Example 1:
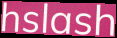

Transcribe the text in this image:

hslash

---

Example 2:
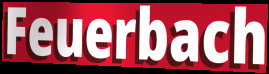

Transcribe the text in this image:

Feuerbach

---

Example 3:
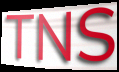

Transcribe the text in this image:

TNS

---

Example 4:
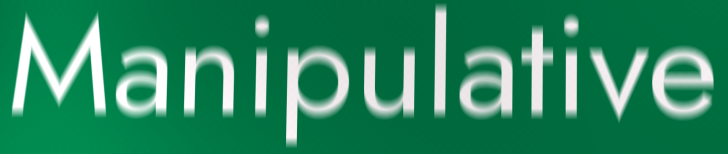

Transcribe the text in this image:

Manipulative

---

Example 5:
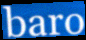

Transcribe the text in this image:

baro